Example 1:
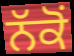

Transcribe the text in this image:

ਨੱਕੋਂ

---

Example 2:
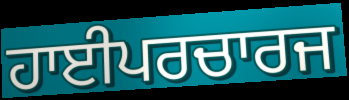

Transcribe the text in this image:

ਹਾਈਪਰਚਾਰਜ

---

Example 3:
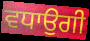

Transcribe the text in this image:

ਵਧਾਉਗੀ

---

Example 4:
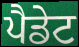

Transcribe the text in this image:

ਪੈਡੇਟ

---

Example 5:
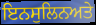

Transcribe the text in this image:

ਇਨਸੁਲਿਨਅਤੇ